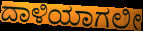
ದಾಳಿಯಾಗಲೀ